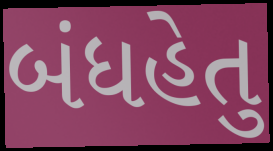
બંધહેતુ